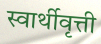
स्वार्थीवृत्ती